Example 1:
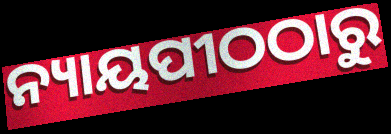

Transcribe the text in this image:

ନ୍ୟାୟପୀଠଠାରୁ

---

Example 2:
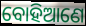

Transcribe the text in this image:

ବୋହିଆଣେ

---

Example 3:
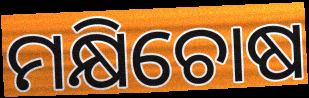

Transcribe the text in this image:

ମକ୍ଷିଚୋଷ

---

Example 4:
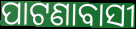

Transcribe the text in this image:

ପାଟଣାବାସୀ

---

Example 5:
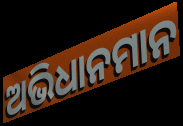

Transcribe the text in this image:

ଅଭିଧାନମାନ